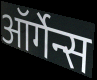
ऑर्गेन्स